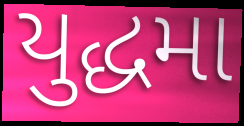
યુદ્ધમા